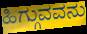
ಹಿಗ್ಗುವವನು